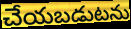
చేయబడుటను